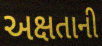
અક્ષતાની